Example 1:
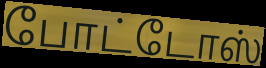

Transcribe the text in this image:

போட்டோஸ்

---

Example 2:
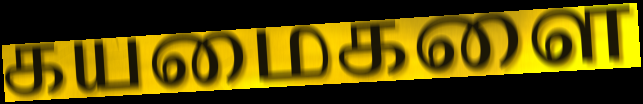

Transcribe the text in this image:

கயமைகளை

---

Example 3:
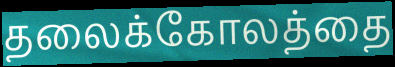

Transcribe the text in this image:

தலைக்கோலத்தை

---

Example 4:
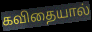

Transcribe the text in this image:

கவிதையால்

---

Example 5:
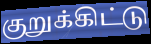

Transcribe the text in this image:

குறுக்கிட்டு